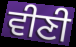
ਵੀਣੀ